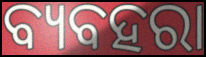
ବ୍ୟବହରା